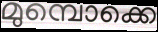
മുമ്പൊക്കെ